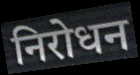
निरोधन